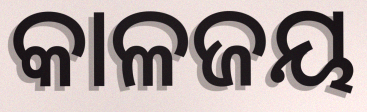
କାଳଜୟ